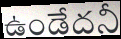
ఉండేదనీ